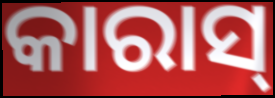
କାରାସ୍